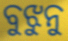
ବୁଝୁନୁ